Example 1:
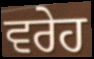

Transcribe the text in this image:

ਵਰੇਹ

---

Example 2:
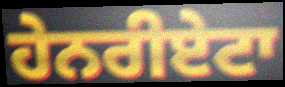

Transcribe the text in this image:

ਹੇਨਰੀਏਟਾ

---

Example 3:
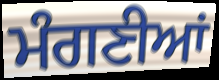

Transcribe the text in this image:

ਮੰਗਣੀਆਂ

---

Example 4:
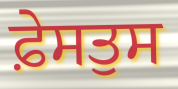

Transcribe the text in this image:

ਫ਼ੇਸਤੁਸ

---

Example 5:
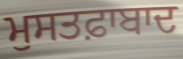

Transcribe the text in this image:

ਮੁਸਤਫ਼ਾਬਾਦ